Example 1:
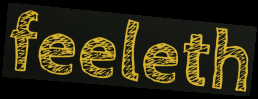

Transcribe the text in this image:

feeleth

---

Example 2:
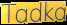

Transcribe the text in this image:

Tadka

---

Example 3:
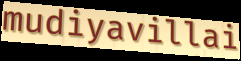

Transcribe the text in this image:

mudiyavillai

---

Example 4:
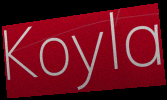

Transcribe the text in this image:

Koyla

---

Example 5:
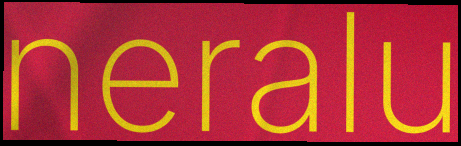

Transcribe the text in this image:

neralu